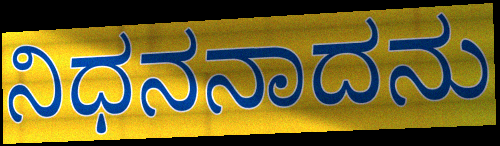
ನಿಧನನಾದನು